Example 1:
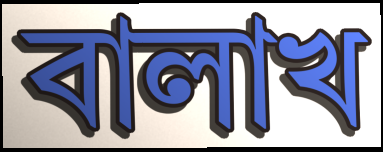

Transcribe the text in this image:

বালাখ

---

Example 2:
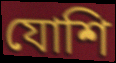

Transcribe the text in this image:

যোশি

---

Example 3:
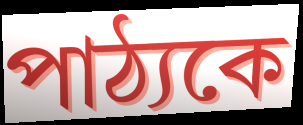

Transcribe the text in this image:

পাঠ্যকে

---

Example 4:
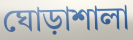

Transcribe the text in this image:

ঘোড়াশালা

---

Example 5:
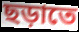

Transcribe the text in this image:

ছড়াতে